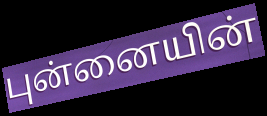
புன்னையின்